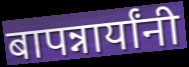
बापन्नार्यांनी